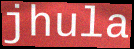
jhula